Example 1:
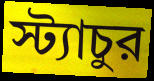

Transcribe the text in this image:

স্ট্যাচুর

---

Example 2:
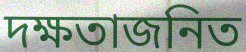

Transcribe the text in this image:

দক্ষতাজনিত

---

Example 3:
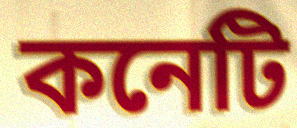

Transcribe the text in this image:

কনেটি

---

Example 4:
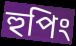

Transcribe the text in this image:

হুপিং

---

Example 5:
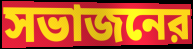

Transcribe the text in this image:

সভাজনের